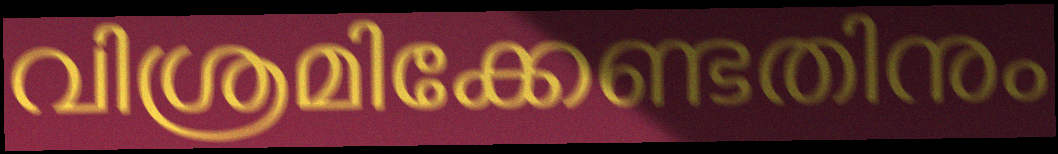
വിശ്രമിക്കേണ്ടതിനും